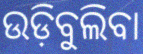
ଉଡ଼ିବୁଲିବା